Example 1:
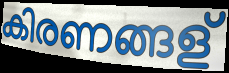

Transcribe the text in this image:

കിരണങ്ങള്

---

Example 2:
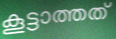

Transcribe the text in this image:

കൂട്ടാത്തത്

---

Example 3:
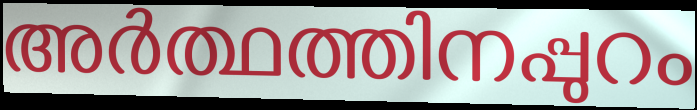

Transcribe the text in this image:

അർത്ഥത്തിനപ്പുറം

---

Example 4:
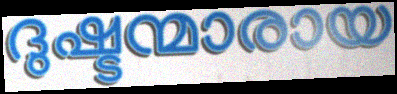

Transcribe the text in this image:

ദുഷ്ടന്മാരായ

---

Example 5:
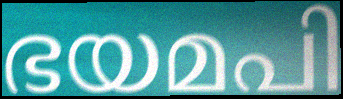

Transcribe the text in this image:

ഭയമപി